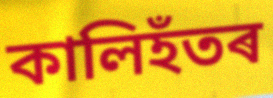
কালিহঁতৰ